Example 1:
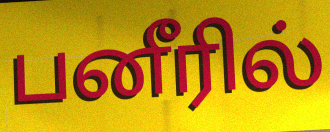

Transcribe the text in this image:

பனீரில்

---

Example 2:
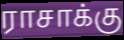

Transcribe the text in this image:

ராசாக்கு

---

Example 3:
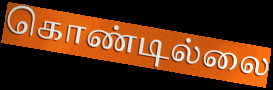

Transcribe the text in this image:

கொண்டில்லை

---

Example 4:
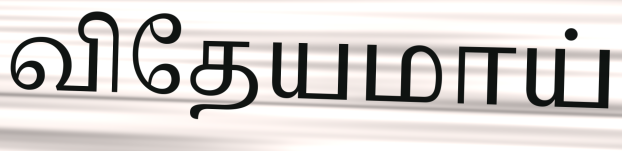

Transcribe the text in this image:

விதேயமாய்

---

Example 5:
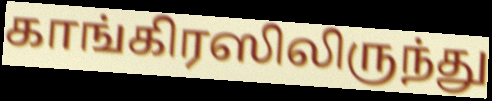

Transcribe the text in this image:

காங்கிரஸிலிருந்து